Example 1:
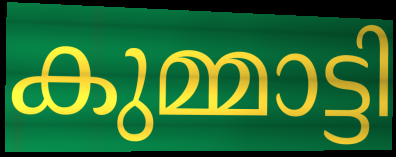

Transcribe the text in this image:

കുമ്മാട്ടി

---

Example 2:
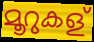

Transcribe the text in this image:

മൂറുകള്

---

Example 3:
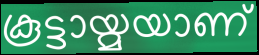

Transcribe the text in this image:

കൂട്ടായ്മയാണ്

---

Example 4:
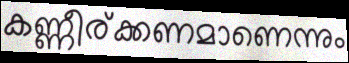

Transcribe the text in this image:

കണ്ണീര്ക്കണമാണെന്നും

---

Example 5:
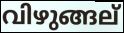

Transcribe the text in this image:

വിഴുങ്ങല്